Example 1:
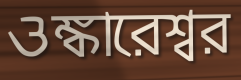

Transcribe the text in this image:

ওঙ্কারেশ্বর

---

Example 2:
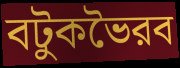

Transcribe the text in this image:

বটুকভৈরব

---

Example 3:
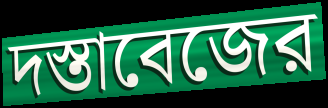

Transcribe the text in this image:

দস্তাবেজের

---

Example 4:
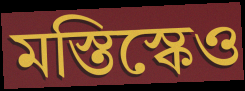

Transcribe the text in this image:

মস্তিস্কেও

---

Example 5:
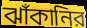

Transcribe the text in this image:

ঝাঁকানির